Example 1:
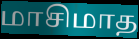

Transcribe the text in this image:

மாசிமாத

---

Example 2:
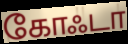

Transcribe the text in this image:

கோஃடா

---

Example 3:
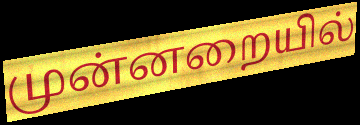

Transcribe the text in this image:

முன்னறையில்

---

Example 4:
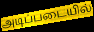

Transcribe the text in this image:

அடிப்படையில்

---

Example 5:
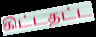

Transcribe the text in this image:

கிட்டதட்ட